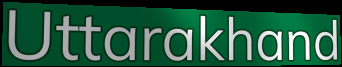
Uttarakhand